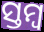
ସ୍ତମ୍ଵ